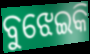
ବୁଝେଇକି